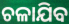
ଚଳାଯିବ